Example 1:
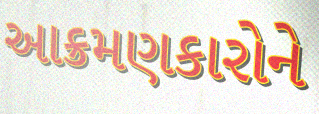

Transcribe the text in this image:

આક્રમણકારોને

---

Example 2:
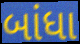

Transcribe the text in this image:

બાંધા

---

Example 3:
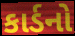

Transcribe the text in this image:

કાર્ડનો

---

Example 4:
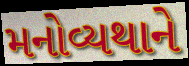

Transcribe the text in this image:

મનોવ્યથાને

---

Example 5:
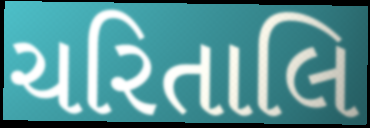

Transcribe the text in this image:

ચરિતાલિ